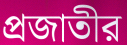
প্রজাতীর